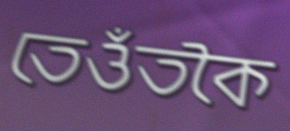
তেওঁতকৈ